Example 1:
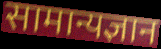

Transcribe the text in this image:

सामान्यज्ञान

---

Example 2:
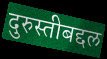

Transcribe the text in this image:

दुरुस्तीबद्दल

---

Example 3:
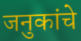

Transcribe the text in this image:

जनुकांचे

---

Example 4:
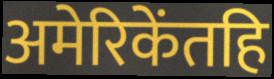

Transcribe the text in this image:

अमेरिकेंतहि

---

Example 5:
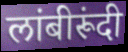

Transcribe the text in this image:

लांबीरूंदी